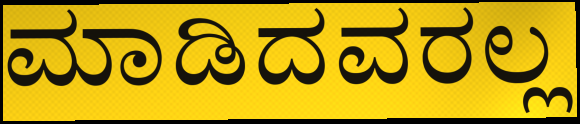
ಮಾಡಿದವರಲ್ಲ